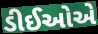
ડીઈઓએ